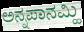
ಅನ್ನಪಾನಮ್ಹಿ